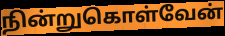
நின்றுகொள்வேன்